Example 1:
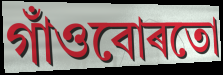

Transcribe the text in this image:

গাঁওবোৰতো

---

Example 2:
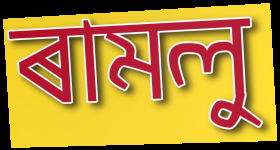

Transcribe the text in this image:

ৰামলু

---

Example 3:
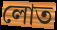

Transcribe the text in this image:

লোত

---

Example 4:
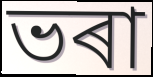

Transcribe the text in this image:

ভৰা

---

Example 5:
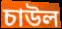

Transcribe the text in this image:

চাউল